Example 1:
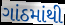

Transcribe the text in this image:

ગાંઠમાંથી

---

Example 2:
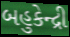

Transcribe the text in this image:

બહુકેન્દ્રી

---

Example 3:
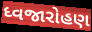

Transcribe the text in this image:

ધ્વજારોહણ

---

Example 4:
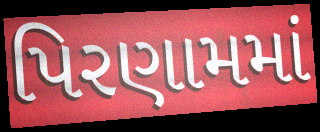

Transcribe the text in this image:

પિરણામમાં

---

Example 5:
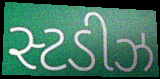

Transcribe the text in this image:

સ્ટડીઝ